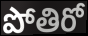
పోతిరో